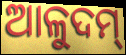
ଆଳୁଦମ୍